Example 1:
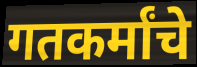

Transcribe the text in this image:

गतकर्मांचे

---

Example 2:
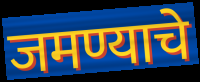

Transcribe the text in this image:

जमण्याचे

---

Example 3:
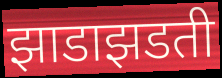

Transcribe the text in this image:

झाडाझडती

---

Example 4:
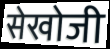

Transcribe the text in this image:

सेखोजी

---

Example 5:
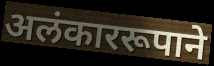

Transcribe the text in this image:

अलंकाररूपाने